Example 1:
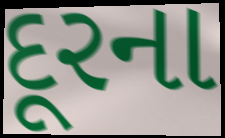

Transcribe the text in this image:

દૂરના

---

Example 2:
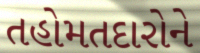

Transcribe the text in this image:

તહોમતદારોને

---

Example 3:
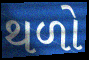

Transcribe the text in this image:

થળો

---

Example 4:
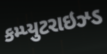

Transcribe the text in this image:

કમ્પ્યુટરાઇઝ્ડ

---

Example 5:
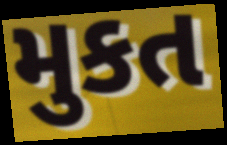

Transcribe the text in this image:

મુકત